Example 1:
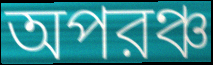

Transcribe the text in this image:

অপরঞ্চ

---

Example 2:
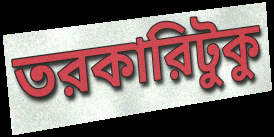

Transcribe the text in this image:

তরকারিটুকু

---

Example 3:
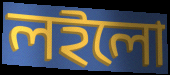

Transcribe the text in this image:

লইলো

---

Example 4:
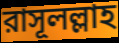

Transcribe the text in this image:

রাসূলল্লাহ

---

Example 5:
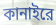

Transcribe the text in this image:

কানাইরে